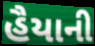
હૈયાની